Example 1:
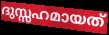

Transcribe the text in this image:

ദുസ്സഹമായത്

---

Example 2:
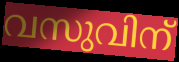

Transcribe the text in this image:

വസുവിന്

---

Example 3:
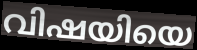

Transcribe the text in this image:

വിഷയിയെ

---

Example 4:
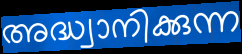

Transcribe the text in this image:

അദ്ധ്വാനിക്കുന്ന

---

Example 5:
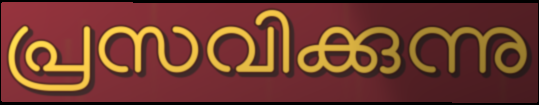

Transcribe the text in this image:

പ്രസവിക്കുന്നു